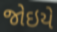
જોઇયે